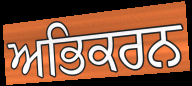
ਅਭਿਕਰਨ